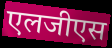
एलजीएस